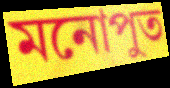
মনোপুত